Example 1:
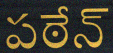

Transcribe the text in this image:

పఠేన్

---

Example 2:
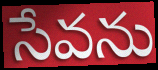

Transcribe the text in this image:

సేవను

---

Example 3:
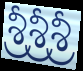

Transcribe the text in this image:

శ్రీశ్రీశ్రీ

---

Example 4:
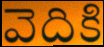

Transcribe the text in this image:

వెదికి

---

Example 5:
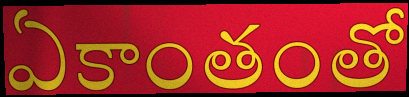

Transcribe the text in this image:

ఏకాంతంతో